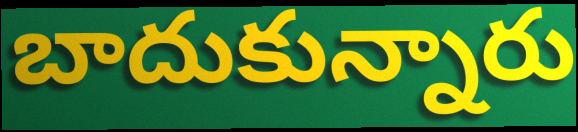
బాదుకున్నారు